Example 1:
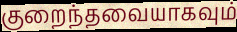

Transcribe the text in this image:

குறைந்தவையாகவும்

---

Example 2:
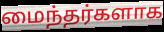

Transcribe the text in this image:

மைந்தர்களாக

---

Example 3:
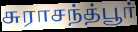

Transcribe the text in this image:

சுராசந்த்பூர்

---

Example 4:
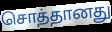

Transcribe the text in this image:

சொத்தானது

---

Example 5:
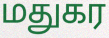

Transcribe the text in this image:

மதுகர